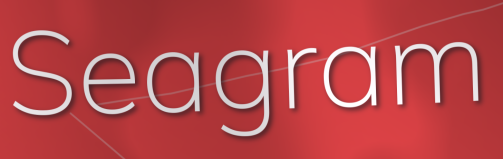
Seagram